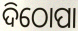
ଦିଠୋପା